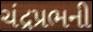
ચંદ્રપ્રભની